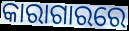
କାରାଗାରରେ